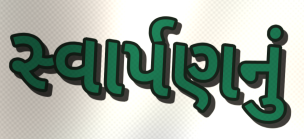
સ્વાર્પણનું